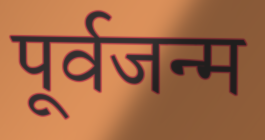
पूर्वजन्म